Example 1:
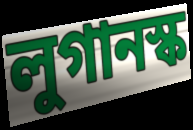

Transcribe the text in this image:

লুগানস্ক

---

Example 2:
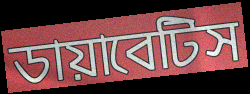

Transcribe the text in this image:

ডায়াবেটিস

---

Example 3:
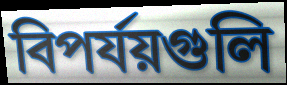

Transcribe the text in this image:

বিপর্যয়গুলি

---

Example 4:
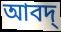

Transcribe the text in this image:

আবদ্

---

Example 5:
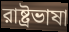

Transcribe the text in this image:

রাষ্ট্রভাষা